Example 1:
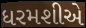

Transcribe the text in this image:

ધરમશીએ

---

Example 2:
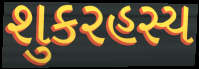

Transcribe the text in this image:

શુકરહસ્ય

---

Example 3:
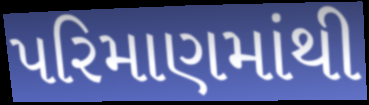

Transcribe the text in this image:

પરિમાણમાંથી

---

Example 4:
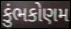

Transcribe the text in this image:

કુંભકોણમ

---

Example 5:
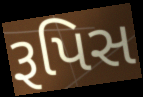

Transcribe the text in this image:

રૂપિસ